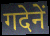
गदेनें